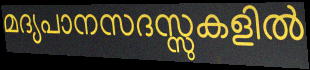
മദ്യപാനസദസ്സുകളിൽ